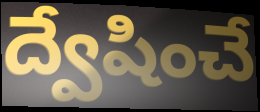
ద్వేషించే